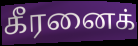
கீரனைக்